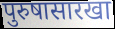
पुरुषासारखा